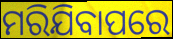
ମରିଯିବାପରେ